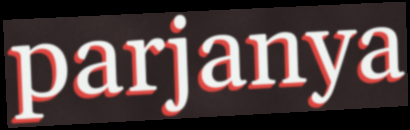
parjanya